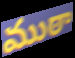
ముఠా